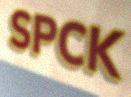
SPCK